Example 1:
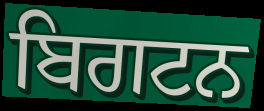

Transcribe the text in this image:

ਬਿਗਟਨ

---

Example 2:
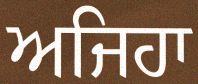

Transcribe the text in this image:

ਅਜਿਹਾ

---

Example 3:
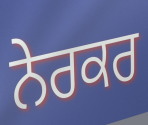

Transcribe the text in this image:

ਨੇਰਕਰ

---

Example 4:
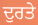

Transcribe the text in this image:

ਦੁਰਤੇ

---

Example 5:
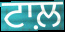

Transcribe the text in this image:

ਟਾਲ਼